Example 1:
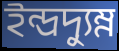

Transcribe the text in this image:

ইন্দ্রদ্যুম্ন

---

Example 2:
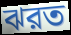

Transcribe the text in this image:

ঝরত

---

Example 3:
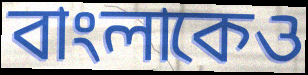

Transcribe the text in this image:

বাংলাকেও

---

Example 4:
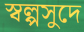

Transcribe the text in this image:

স্বল্পসুদে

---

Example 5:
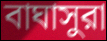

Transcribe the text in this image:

বাঘাসুরা